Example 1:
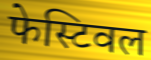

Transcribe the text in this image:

फेस्टिवल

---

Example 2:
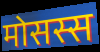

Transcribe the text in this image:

मोसस्स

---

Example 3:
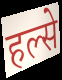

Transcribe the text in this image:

हल्से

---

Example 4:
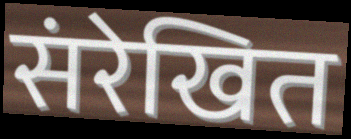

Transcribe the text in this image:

संरेखित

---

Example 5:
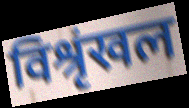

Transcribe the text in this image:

विश्रृंखल